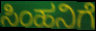
ಸಿಂಹನಿಗೆ